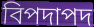
বিপদাপদ